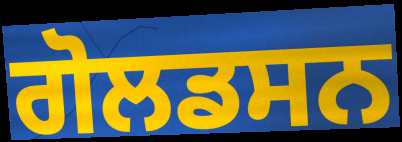
ਗੋਲਡਸਨ